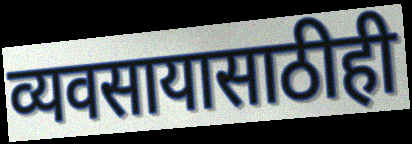
व्यवसायासाठीही